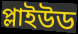
প্লাইউড